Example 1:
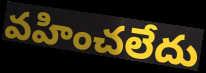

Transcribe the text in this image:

వహించలేదు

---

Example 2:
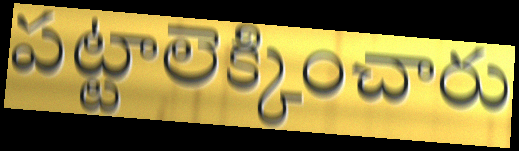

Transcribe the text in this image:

పట్టాలెక్కించారు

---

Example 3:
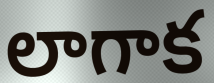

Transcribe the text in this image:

లాగాక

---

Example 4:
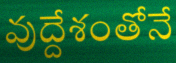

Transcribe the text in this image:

వుద్దేశంతోనే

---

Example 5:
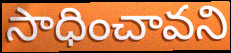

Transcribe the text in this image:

సాధించావని